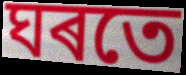
ঘৰতে